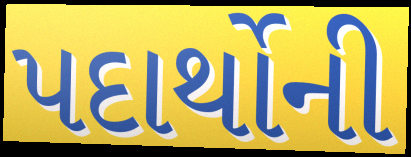
પદાર્થોની